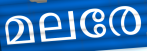
മലരേ